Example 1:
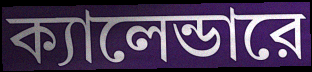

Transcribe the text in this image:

ক্যালেন্ডারে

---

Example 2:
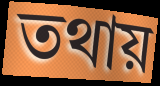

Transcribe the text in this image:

তথায়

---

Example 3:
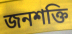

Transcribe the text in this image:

জনশক্তি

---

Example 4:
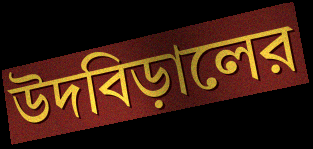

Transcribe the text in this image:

উদবিড়ালের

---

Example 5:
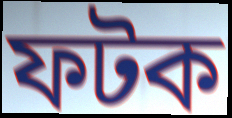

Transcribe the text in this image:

ফটক